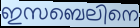
ഇസബെലിനെ